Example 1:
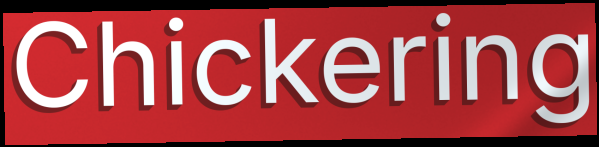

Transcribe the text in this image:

Chickering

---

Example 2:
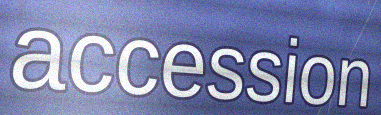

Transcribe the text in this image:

accession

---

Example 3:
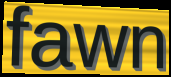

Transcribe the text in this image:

fawn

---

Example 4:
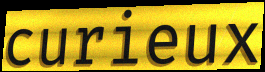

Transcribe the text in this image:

curieux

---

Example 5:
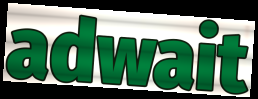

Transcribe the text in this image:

adwait